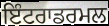
ਇੰਟਰਾਡਰਮਲ